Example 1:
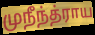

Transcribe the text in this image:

முநீந்த்ராய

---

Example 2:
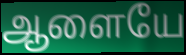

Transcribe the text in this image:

ஆளையே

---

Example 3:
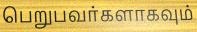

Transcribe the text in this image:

பெறுபவர்களாகவும்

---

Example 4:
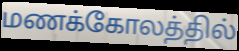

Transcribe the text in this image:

மணக்கோலத்தில்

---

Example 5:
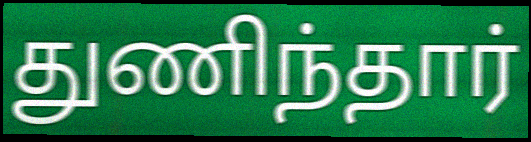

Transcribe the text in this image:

துணிந்தார்